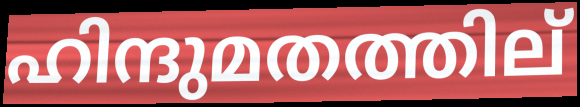
ഹിന്ദുമതത്തില്